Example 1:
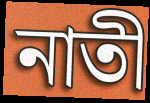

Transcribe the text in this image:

নাতী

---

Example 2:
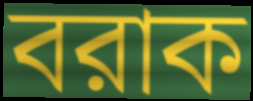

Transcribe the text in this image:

বরাক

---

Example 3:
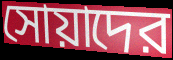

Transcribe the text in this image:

সোয়াদের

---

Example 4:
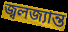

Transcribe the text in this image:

জ্বলজ্যান্ত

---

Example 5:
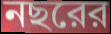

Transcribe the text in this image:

নছরের